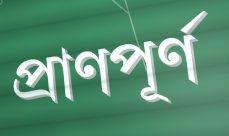
প্রাণপূর্ণ